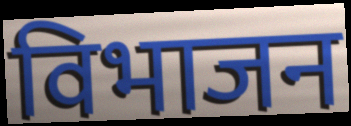
विभाजन